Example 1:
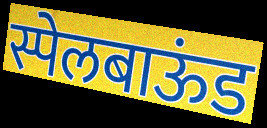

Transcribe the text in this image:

स्पेलबाऊंड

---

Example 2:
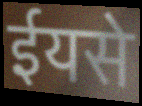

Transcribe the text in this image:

ईयसे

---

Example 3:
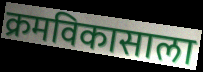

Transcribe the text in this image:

क्रमविकासाला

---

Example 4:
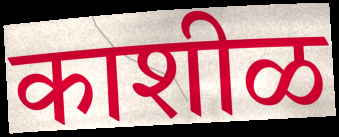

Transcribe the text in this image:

काशीळ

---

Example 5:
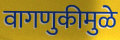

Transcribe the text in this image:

वागणुकीमुळे